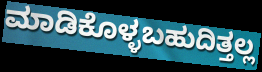
ಮಾಡಿಕೊಳ್ಳಬಹುದಿತ್ತಲ್ಲ